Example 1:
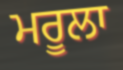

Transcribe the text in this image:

ਮਰੂਲਾ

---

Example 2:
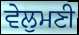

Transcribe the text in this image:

ਵੇਲੁਮਣੀ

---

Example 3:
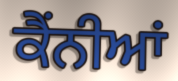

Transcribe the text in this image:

ਕੈਂਨੀਆਂ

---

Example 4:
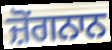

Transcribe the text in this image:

ਜ਼ੋਂਗਨਾਨ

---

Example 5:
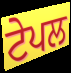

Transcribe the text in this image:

ਟੇਪਲ